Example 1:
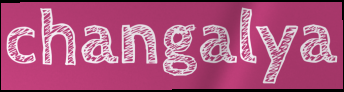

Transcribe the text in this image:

changalya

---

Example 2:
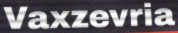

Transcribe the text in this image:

Vaxzevria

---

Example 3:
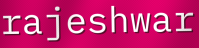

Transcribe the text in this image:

rajeshwar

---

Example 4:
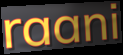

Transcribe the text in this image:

raani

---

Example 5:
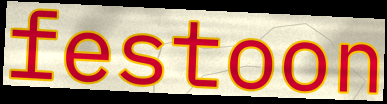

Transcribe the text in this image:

festoon